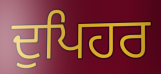
ਦੁਪਿਹਰ